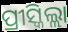
ପ୍ରୀସ୍କିଲ୍ଲା